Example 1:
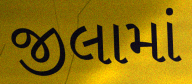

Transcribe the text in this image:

જીલામાં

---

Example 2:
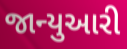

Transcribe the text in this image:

જાન્યુઆરી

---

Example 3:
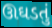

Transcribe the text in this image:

ઊઘડતું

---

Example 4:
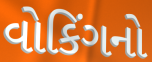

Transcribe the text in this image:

વોકિંગનો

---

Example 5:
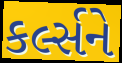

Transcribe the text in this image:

કર્લ્સને